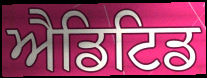
ਐਡਿਟਿਡ